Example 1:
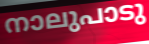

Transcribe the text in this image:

നാലുപാടു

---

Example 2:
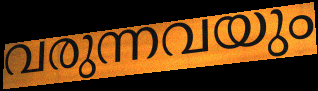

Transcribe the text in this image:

വരുന്നവയും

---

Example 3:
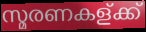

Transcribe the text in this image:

സ്മരണകള്ക്ക്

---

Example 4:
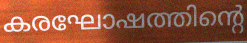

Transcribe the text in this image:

കരഘോഷത്തിന്റെ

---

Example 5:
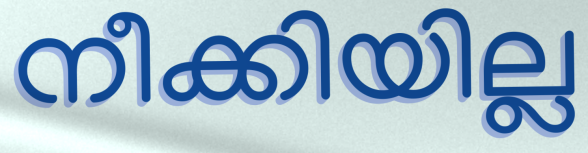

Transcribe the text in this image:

നീക്കിയില്ല